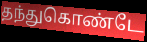
தந்துகொண்டே